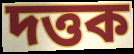
দত্তক